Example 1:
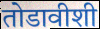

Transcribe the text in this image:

तोडावीशी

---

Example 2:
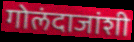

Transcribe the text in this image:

गोलंदाजांशी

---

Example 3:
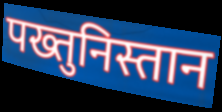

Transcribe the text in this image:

पख्तुनिस्तान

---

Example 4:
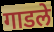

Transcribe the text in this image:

गाडले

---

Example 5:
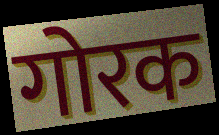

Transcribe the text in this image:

गोरक